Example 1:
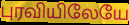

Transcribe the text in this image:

புரவியிலேயே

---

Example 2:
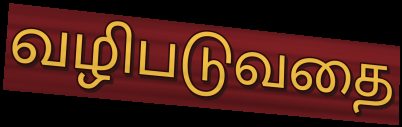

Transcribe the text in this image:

வழிபடுவதை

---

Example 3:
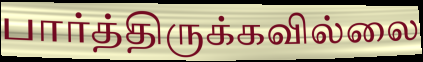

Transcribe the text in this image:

பார்த்திருக்கவில்லை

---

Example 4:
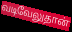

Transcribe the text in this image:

வடிவேலுதான்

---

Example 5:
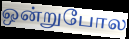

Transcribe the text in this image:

ஒன்றுபோல